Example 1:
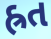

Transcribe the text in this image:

હ્રત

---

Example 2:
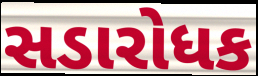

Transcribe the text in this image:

સડારોધક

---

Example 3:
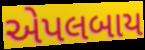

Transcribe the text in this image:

એપલબાય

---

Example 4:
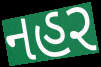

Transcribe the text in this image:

નહર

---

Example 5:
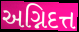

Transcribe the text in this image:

અગ્નિદત્ત